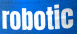
robotic